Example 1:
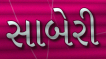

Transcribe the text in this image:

સાબેરી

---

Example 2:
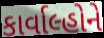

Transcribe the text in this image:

કાર્વાલ્હોને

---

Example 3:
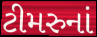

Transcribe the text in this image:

ટીમરુનાં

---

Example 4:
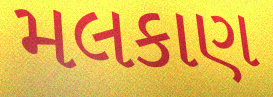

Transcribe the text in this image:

મલકાણ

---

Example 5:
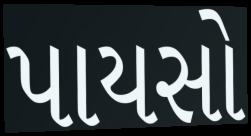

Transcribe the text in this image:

પાયસો